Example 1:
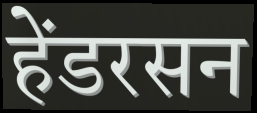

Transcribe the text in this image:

हेंडरसन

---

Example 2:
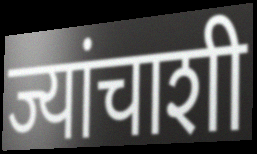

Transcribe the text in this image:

ज्यांचाशी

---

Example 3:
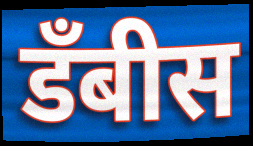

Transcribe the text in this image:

डॅंबीस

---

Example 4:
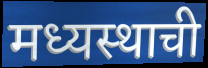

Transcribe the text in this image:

मध्यस्थाची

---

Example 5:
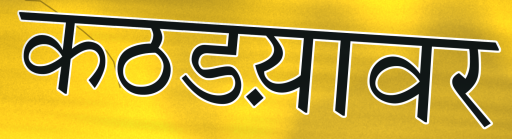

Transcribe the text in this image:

कठडय़ावर